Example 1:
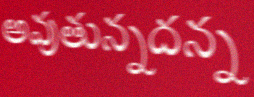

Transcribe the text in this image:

అవుతున్నదన్న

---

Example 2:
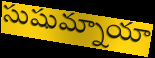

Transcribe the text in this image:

సుషుమ్నాయా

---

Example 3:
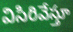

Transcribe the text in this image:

విసిరివేస్తూ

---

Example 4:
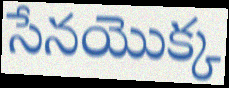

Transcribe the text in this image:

సేనయొక్క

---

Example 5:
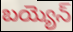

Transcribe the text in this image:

బయ్యెన్